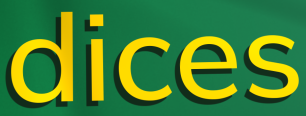
dices